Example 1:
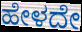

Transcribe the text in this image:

ಹೇಳದೇ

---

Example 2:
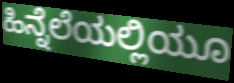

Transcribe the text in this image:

ಹಿನ್ನೆಲೆಯಲ್ಲಿಯೂ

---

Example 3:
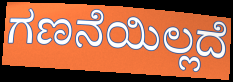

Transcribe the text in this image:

ಗಣನೆಯಿಲ್ಲದೆ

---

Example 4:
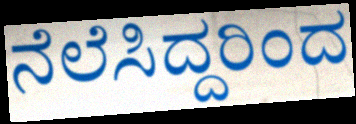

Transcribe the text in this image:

ನೆಲೆಸಿದ್ದರಿಂದ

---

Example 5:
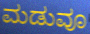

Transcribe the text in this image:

ಮಡುವೂ